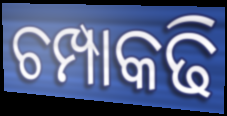
ଚମ୍ପାକଢି